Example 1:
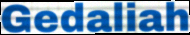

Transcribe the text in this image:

Gedaliah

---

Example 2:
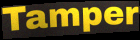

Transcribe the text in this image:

Tamper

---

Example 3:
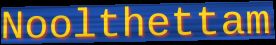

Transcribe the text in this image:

Noolthettam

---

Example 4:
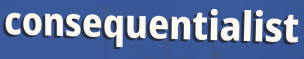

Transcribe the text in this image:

consequentialist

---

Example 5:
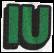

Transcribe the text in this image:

IU